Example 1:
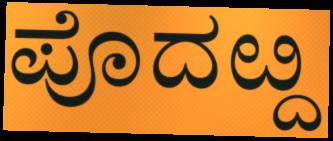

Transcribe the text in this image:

ಪೊದೞ್ದ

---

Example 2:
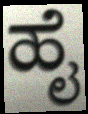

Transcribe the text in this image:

ಹೈ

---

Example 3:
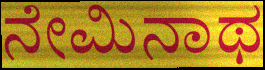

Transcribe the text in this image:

ನೇಮಿನಾಥ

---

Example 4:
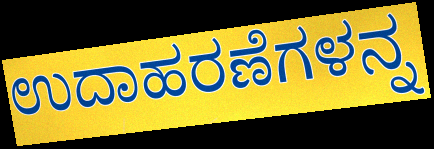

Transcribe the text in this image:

ಉದಾಹರಣೆಗಳನ್ನ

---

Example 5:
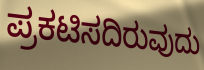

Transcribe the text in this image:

ಪ್ರಕಟಿಸದಿರುವುದು